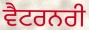
ਵੈਟਰਨਰੀ